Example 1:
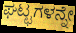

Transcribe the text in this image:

ಘಟ್ಟಗಳನ್ನೇ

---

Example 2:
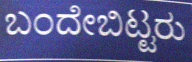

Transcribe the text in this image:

ಬಂದೇಬಿಟ್ಟರು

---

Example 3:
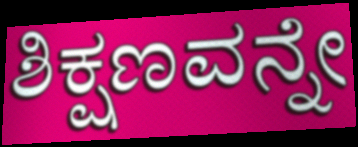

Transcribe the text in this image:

ಶಿಕ್ಷಣವನ್ನೇ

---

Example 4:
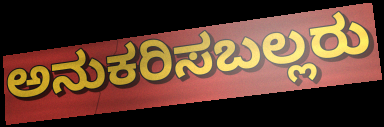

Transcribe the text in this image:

ಅನುಕರಿಸಬಲ್ಲರು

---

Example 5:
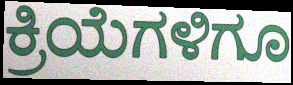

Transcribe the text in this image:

ಕ್ರಿಯೆಗಳಿಗೂ